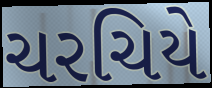
ચરચિયે